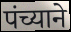
पंच्याने